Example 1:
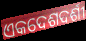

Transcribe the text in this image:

ଏକଦେଶଦର୍ଶୀ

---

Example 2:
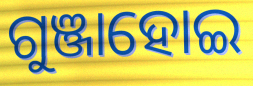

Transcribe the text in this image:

ଗୁଞ୍ଜାହୋଇ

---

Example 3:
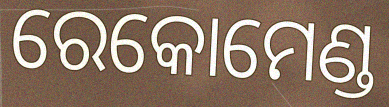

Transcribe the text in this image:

ରେକୋମେଣ୍ଡ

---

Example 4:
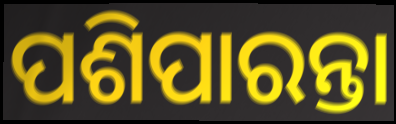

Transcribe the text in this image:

ପଶିପାରନ୍ତା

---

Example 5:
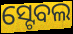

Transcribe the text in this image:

ସ୍ଟେବଲ